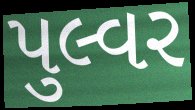
પુલ્વર